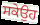
ਸਕੇਉਹ